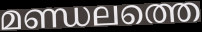
മണ്ഡലത്തെ